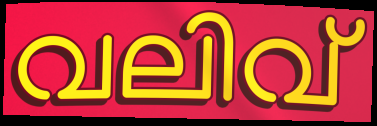
വലിവ്